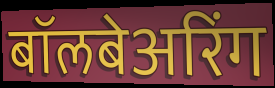
बॉलबेअरिंग